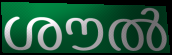
ശൗൽ